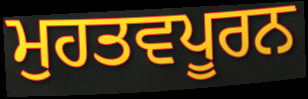
ਮੁਹਤਵਪੂਰਨ